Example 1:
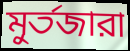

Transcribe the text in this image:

মুর্তজারা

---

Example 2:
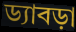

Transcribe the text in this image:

ড্যাবড়া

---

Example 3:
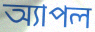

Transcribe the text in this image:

অ্যাপল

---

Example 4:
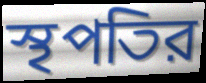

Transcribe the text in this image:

স্থপতির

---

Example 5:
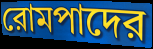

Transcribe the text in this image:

রোমপাদের